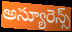
అస్యూరెన్స్